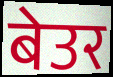
बेउर